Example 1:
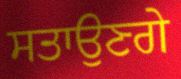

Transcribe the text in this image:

ਸਤਾਉਣਗੇ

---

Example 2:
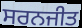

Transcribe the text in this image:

ਸਰਨਜੀਤ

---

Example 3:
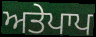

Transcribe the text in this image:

ਅਤੇਪਾਪ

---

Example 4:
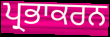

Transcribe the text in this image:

ਪ੍ਰਭਾਕਰਨ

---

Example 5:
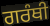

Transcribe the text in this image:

ਗਰੰਥੀ